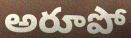
అరూపో